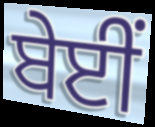
ਬੇਈਂ